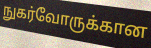
நுகர்வோருக்கான